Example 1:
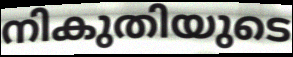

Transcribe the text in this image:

നികുതിയുടെ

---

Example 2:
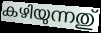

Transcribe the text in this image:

കഴിയുന്നതു്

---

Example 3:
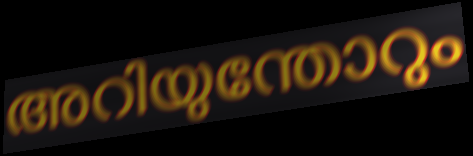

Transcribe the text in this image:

അറിയുന്തോറും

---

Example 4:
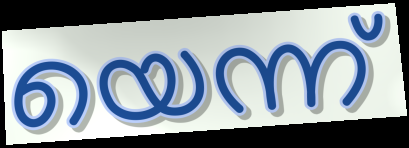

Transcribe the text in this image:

യെന്ന്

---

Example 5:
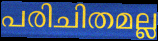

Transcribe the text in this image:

പരിചിതമല്ല